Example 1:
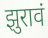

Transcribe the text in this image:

झुरावं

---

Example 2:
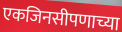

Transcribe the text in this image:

एकजिनसीपणाच्या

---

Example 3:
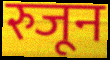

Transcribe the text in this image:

रुजून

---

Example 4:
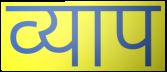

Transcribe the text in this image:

व्याप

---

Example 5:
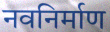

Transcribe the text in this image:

नवनिर्माण